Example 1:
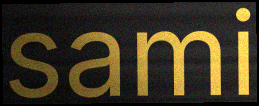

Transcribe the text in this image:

sami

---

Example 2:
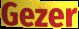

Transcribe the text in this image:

Gezer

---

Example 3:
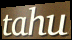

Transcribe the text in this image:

tahu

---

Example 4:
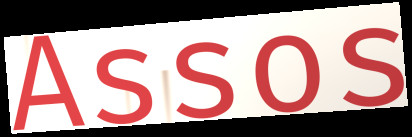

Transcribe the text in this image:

Assos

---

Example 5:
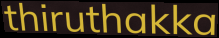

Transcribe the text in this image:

thiruthakka